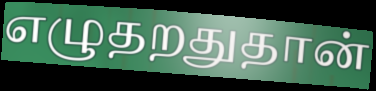
எழுதறதுதான்